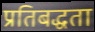
प्रतिबद्धता